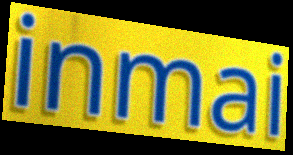
inmai